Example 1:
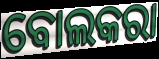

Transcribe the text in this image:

ବୋଲକରା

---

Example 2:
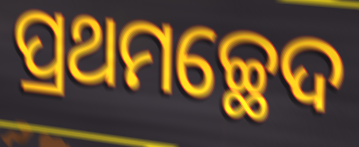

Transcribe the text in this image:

ପ୍ରଥମଚ୍ଛେଦ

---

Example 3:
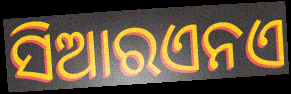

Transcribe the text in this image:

ସିଆରଏନଏ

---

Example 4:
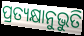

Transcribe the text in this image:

ପ୍ରତ୍ୟକ୍ଷାନୁଭୁତି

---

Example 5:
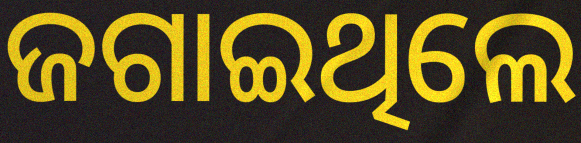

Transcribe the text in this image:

ଜଗାଇଥିଲେ